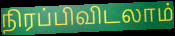
நிரப்பிவிடலாம்